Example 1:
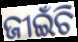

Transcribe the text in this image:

ଜୀଇଁଚି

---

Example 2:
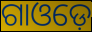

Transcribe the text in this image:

ଗାଓଡ଼େ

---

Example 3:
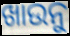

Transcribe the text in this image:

ଖାଉନୁ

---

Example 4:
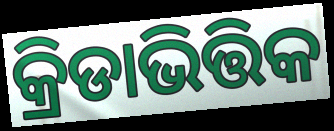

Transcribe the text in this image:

କ୍ରିଡାଭିତ୍ତିକ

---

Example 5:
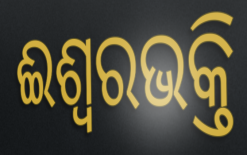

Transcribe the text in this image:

ଈଶ୍ୱରଭକ୍ତି